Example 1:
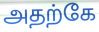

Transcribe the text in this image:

அதற்கே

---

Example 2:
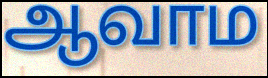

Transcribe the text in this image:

ஆவாம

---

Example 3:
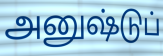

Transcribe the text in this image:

அனுஷ்டுப்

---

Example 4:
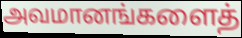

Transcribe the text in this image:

அவமானங்களைத்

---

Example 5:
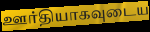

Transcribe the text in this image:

ஊர்தியாகவுடைய